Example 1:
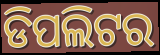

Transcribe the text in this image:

ଡିପଲିଟର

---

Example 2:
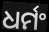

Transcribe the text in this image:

ଧର୍ମଂ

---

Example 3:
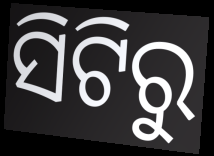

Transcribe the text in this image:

ସିଟିରୁ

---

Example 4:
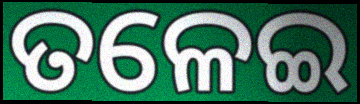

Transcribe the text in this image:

ତଳେଇ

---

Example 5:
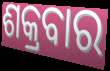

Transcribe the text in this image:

ଶକ୍ରବାର